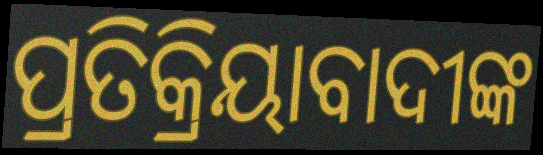
ପ୍ରତିକ୍ରିୟାବାଦୀଙ୍କ